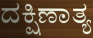
ದಕ್ಷಿಣಾತ್ಯ